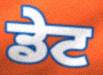
ਡੇਟ